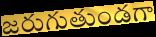
జరుగుతుండగా